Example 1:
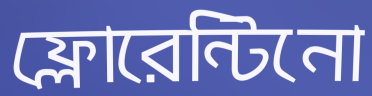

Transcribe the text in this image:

ফ্লোরেন্টিনো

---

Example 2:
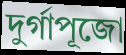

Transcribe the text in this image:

দুর্গাপূজো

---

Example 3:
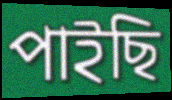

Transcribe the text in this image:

পাইছি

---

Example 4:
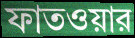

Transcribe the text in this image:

ফাতওয়ার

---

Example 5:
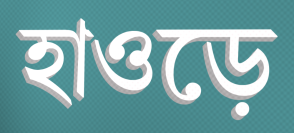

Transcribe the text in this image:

হাওড়ে